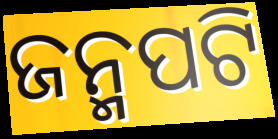
ଜନ୍ମପଟି